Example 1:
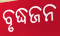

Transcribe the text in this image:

ବୃଦ୍ଧଜନ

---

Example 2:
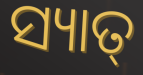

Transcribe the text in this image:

ସ୍ୟାତ୍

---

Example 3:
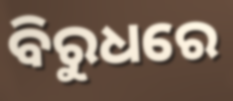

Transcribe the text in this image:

ବିରୁଧରେ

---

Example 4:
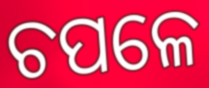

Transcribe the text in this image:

ଚପଳେ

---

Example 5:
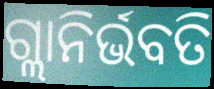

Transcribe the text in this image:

ଗ୍ଲାନିର୍ଭବତି